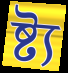
ষ্ট্য